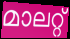
മാലറ്റ്